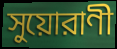
সুয়োরাণী